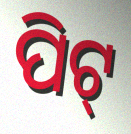
ପିଟ୍